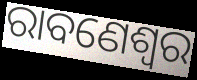
ରାବଣେଶ୍ୱର